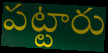
పట్టారు